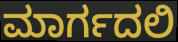
ಮಾರ್ಗದಲಿ